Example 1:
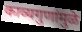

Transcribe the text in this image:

काव्यगुणांमुळे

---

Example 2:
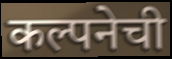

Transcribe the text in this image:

कल्पनेची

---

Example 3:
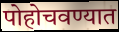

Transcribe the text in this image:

पोहोचवण्यात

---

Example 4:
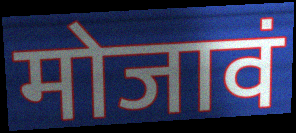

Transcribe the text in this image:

मोजावं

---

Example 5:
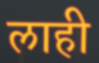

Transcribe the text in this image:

लाही